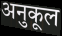
अनुकूल